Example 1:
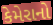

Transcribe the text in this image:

કેમેરાનો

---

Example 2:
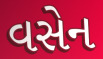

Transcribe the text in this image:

વસેન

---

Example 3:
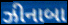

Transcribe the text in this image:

ઝીનાબા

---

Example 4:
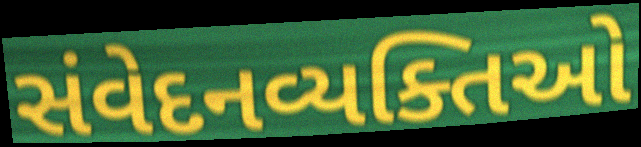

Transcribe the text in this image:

સંવેદનવ્યક્તિઓ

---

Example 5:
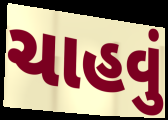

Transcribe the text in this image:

ચાહવું